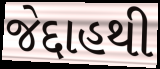
જેદ્દાહથી